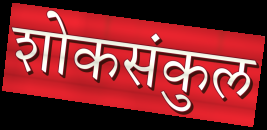
शोकसंकुल